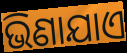
ଭିଣାଯାଏ